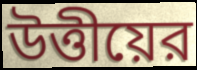
উত্তীয়ের